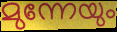
മുന്നേയും